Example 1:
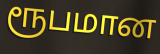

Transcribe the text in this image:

ரூபமான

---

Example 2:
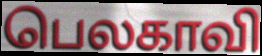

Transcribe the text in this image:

பெலகாவி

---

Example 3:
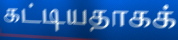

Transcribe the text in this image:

கட்டியதாகக்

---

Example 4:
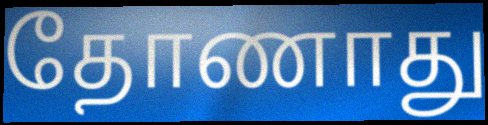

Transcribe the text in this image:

தோணாது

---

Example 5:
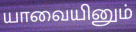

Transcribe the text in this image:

யாவையினும்